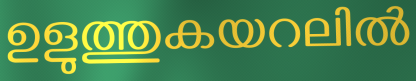
ഉളുത്തുകയറലിൽ